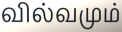
வில்வமும்